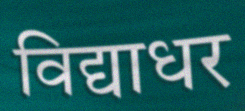
विद्याधर